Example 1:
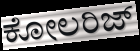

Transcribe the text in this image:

ಕೋಲರಿಜ್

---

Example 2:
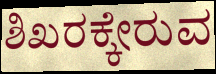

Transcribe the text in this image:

ಶಿಖರಕ್ಕೇರುವ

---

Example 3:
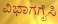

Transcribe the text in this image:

ವಿಭಾಗಗೈಸಿ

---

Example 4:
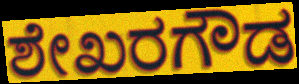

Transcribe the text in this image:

ಶೇಖರಗೌಡ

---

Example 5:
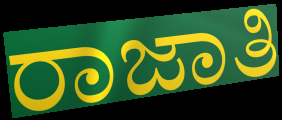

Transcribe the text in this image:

ರಾಜಾತಿ